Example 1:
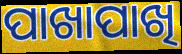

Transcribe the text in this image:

ପାଖାପାଖି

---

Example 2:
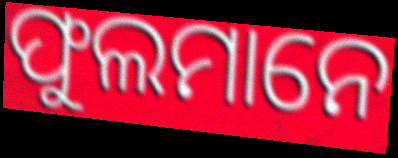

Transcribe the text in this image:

ଫୁଲମାନେ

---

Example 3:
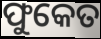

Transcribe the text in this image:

ଫୁକେତ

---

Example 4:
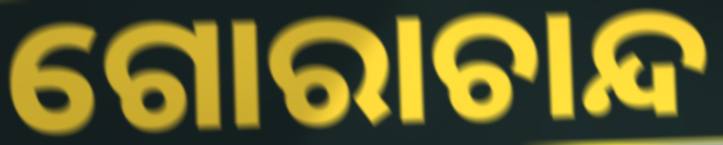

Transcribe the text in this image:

ଗୋରାଚାନ୍ଦ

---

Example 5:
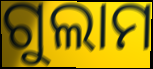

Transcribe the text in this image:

ଗୁଲାମ